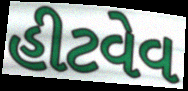
હીટવેવ